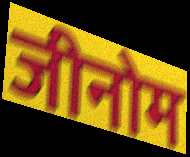
जीनोम